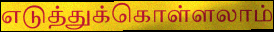
எடுத்துக்கொள்ளலாம்